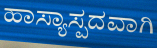
ಹಾಸ್ಯಾಸ್ಪದವಾಗಿ